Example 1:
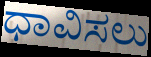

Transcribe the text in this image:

ಧಾವಿಸಲು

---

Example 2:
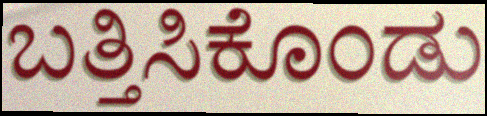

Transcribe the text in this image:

ಬತ್ತಿಸಿಕೊಂಡು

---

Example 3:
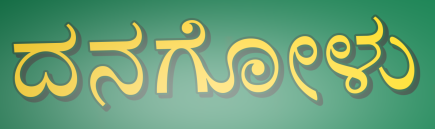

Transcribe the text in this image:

ದನಗೋಳು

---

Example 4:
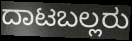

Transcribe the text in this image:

ದಾಟಬಲ್ಲರು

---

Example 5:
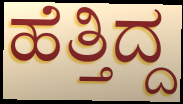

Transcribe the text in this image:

ಹೆತ್ತಿದ್ದ